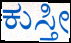
ಕುಸ್ತೀ